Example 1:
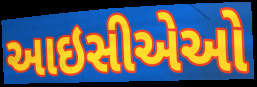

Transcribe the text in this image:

આઇસીએઓ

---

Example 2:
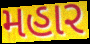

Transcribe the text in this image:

મહાર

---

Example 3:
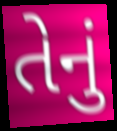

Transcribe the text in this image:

તેનું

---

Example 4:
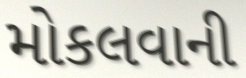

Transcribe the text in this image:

મોકલવાની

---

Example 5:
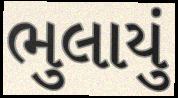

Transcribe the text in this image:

ભુલાયું